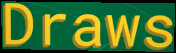
Draws